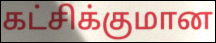
கட்சிக்குமான